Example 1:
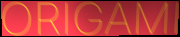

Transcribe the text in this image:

ORIGAMI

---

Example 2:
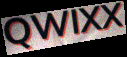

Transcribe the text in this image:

QWIXX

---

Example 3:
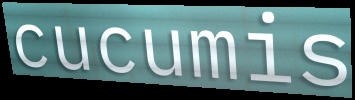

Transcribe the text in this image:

cucumis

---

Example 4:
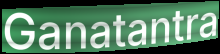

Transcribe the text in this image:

Ganatantra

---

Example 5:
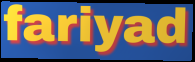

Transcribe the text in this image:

fariyad